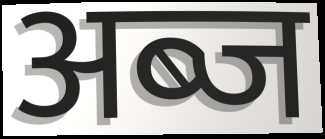
अब्ज